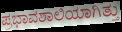
ಪ್ರಭಾವಶಾಲಿಯಾಗಿತ್ತು